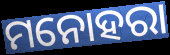
ମନୋହରା